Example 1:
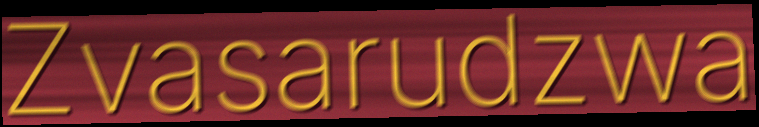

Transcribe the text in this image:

Zvasarudzwa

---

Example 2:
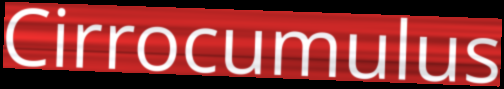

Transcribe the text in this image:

Cirrocumulus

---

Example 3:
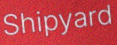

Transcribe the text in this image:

Shipyard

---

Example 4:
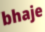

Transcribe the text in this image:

bhaje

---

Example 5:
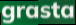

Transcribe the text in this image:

grasta